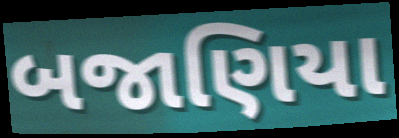
બજાણિયા